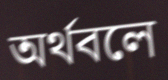
অর্থবলে